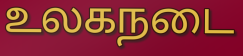
உலகநடை